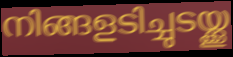
നിങ്ങളടിച്ചുടയ്ക്കൂ